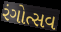
રંગોત્સવ